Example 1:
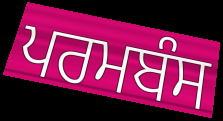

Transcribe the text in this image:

ਪਰਮਬੰਸ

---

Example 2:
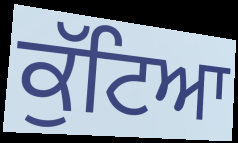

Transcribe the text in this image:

ਕੁੱਟਿਆ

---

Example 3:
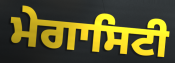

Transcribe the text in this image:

ਮੇਗਾਸਿਟੀ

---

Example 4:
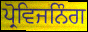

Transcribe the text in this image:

ਪ੍ਰੋਵਿਜਨਿੰਗ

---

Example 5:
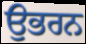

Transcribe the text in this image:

ਉਭਰਨ